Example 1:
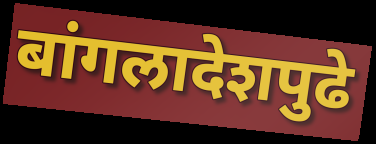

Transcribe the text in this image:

बांगलादेशपुढे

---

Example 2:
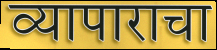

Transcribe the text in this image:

व्यापाराचा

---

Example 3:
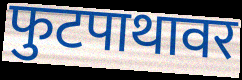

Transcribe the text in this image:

फुटपाथावर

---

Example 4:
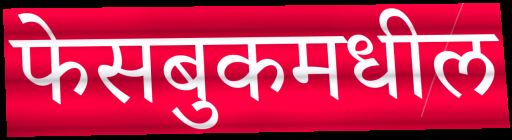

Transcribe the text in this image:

फेसबुकमधील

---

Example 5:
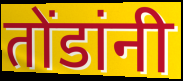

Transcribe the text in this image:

तोंडांनी